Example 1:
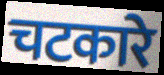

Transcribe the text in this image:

चटकारे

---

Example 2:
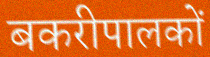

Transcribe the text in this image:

बकरीपालकों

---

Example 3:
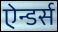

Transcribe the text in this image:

ऐन्डर्स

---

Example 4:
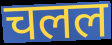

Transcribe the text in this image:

चलल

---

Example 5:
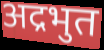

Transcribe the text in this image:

अद्रभुत